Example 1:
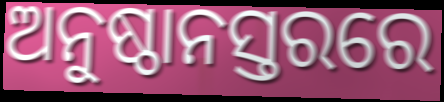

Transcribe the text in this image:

ଅନୁଷ୍ଠାନସ୍ତରରେ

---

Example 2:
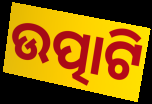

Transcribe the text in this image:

ଉତ୍ପାଟି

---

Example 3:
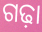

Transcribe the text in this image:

ଗଢ଼ା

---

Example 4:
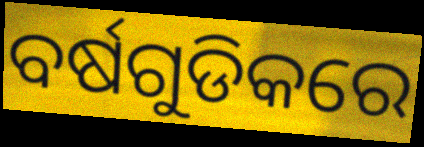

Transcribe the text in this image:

ବର୍ଷଗୁଡିକରେ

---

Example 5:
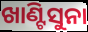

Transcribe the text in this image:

ଖାଣ୍ଟିସୁନା